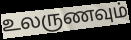
உலருணவும்